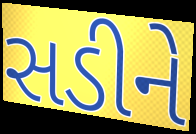
સડીને